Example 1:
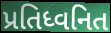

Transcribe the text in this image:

પ્રતિધ્વનિત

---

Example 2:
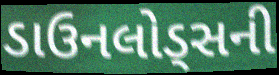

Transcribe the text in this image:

ડાઉનલોડ્સની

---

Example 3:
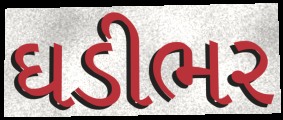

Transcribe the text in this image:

ઘડીભર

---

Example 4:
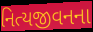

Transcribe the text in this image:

નિત્યજીવનના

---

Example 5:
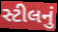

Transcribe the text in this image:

સ્ટીલનું